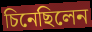
চিনেছিলেন